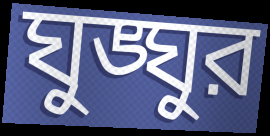
ঘুঙ্ঘুর